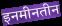
इनमीनतीन